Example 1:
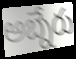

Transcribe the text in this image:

అబ్నేరు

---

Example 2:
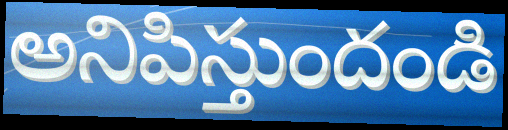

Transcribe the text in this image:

అనిపిస్తుందండి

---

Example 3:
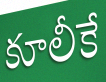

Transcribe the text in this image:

కూలీకే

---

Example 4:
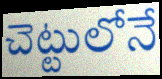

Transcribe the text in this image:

చెట్టులోనే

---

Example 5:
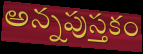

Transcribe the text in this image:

అన్నపుస్తకం